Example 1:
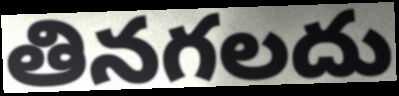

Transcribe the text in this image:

తినగలదు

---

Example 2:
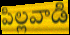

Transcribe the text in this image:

పిల్లవాడి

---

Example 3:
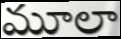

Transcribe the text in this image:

మూలా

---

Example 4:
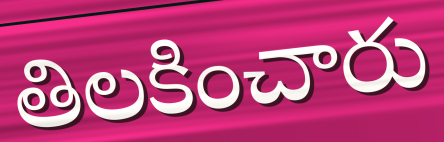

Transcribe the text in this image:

తిలకించారు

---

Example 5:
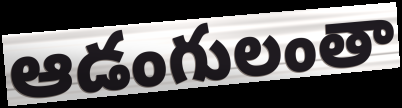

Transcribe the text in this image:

ఆడంగులంతా